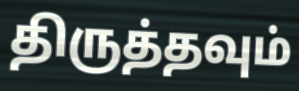
திருத்தவும்